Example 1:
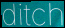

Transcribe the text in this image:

ditch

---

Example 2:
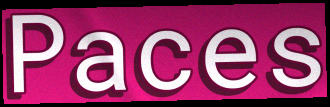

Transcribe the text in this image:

Paces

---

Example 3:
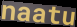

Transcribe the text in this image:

naatu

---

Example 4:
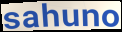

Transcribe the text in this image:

sahuno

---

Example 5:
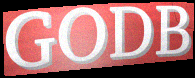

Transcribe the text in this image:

GODB